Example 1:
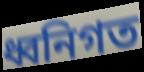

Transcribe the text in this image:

ধ্বনিগত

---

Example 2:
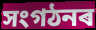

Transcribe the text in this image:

সংগঠনৰ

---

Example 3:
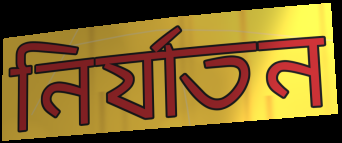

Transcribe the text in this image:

নিৰ্যাতন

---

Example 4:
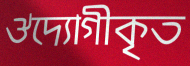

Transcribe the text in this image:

ঔদ্যোগীকৃত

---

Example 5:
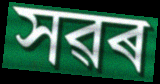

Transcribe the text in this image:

সৱৰ